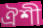
ঐশী